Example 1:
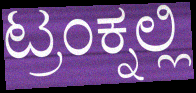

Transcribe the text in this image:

ಟ್ರಂಕ್ನಲ್ಲಿ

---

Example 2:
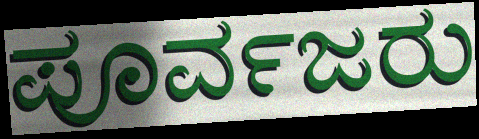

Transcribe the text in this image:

ಪೂರ್ವಜರು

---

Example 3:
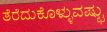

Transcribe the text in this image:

ತೆರೆದುಕೊಳ್ಳುವಷ್ಟು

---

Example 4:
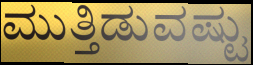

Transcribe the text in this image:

ಮುತ್ತಿಡುವಷ್ಟು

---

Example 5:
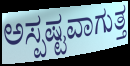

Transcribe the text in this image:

ಅಸ್ಪಷ್ಟವಾಗುತ್ತ